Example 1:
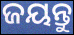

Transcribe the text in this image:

ଜୟନ୍ତୁ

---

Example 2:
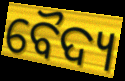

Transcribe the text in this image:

ବୈଦ୍ୟ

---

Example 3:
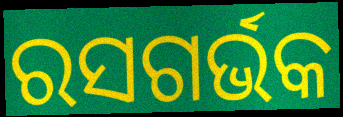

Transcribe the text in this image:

ରସଗର୍ଭକ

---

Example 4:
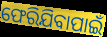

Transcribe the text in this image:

ଫେରିଯିବାପାଇଁ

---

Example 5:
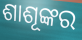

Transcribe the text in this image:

ଶାଶୂଙ୍କର